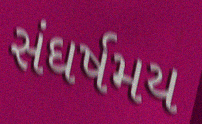
સંઘર્ષમય